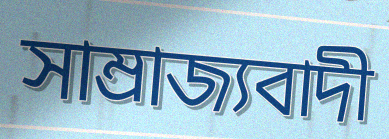
সাম্রাজ্যবাদী